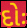
દોઃ